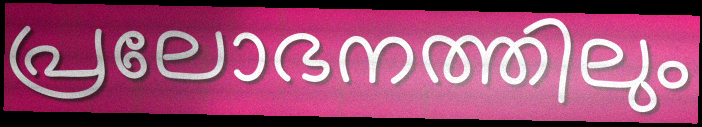
പ്രലോഭനത്തിലും